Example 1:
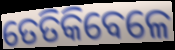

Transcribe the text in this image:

ତେତିକିବେଳେ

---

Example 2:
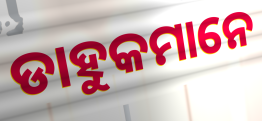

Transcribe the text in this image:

ଡାହୁକମାନେ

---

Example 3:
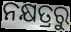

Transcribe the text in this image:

ନକ୍ଷତ୍ରରୁ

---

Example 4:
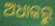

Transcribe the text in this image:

ଅଧାକରୁ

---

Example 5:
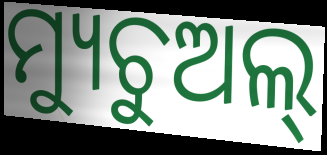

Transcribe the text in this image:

ମ୍ୟୁଚୁଅଲ୍